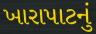
ખારાપાટનું